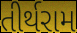
તીર્થરામ